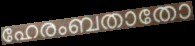
ഹേരംബതാതോ